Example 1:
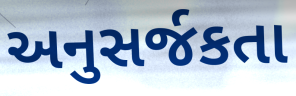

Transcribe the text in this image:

અનુસર્જકતા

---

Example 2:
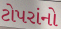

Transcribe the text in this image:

ટોપરાંનો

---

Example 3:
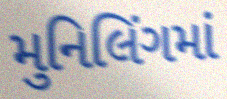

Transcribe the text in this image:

મુનિલિંગમાં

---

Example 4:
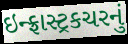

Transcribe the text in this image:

ઇન્ફ્રાસ્ટ્રકચરનું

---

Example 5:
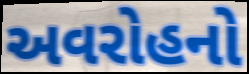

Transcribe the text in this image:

અવરોહનો